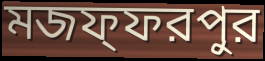
মজফ্ফরপুর